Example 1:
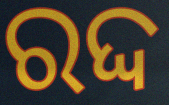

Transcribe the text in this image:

ରଦ୍ଦ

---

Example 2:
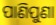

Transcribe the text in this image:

ପାଣିପୁଣା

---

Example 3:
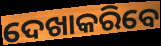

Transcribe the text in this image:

ଦେଖାକରିବେ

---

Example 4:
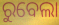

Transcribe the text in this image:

ରୁବେଲା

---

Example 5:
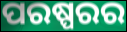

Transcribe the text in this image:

ପରଷ୍ପରର